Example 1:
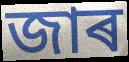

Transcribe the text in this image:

জাৰ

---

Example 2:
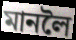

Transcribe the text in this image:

মানলৈ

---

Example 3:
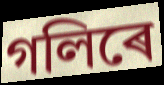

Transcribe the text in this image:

গলিৰে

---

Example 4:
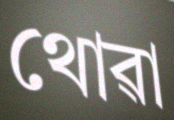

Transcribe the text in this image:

থোৱা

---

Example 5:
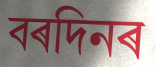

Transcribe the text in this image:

বৰদিনৰ